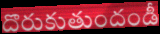
దొరుకుతుందండీ